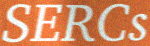
SERCs